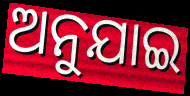
ଅନୁଯାଇ